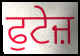
ਫੁਟੇਜ਼